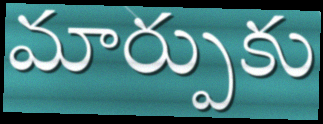
మార్పుకు